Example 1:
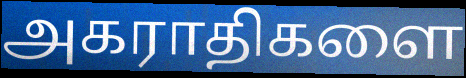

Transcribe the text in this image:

அகராதிகளை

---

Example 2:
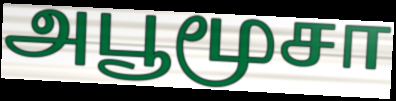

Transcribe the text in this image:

அபூமூசா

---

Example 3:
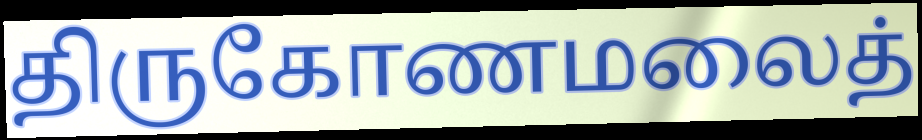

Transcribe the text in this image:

திருகோணமலைத்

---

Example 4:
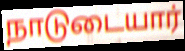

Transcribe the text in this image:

நாடுடையார்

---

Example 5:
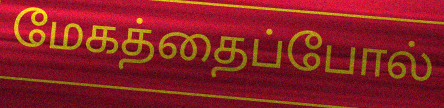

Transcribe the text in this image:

மேகத்தைப்போல்